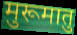
मुरूमातु